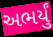
અભર્યું